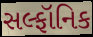
સલ્ફૉનિક